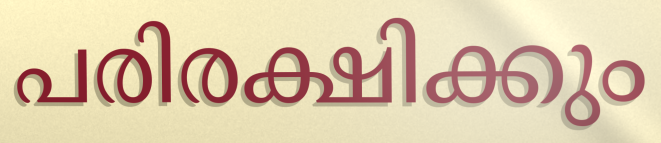
പരിരക്ഷിക്കും